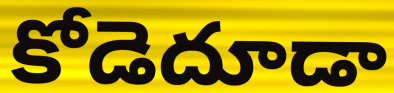
కోడెదూడా